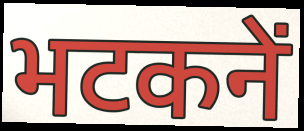
भटकनें